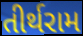
તીર્થરામ